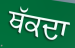
ਥੱਕਦਾ